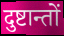
दुष्टान्तों